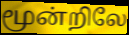
மூன்றிலே